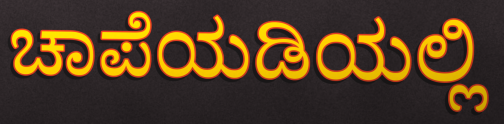
ಚಾಪೆಯಡಿಯಲ್ಲಿ